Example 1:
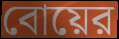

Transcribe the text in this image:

বোয়ের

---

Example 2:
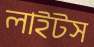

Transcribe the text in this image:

লাইটস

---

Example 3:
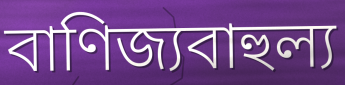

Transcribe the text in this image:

বাণিজ্যবাহুল্য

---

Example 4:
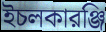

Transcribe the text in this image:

ইচলকারঞ্জি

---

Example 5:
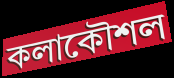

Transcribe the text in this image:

কলাকৌশল